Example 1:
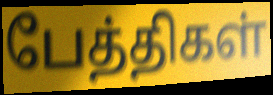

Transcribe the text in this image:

பேத்திகள்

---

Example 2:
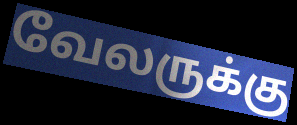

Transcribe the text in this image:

வேலருக்கு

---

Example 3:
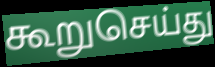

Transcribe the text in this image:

கூறுசெய்து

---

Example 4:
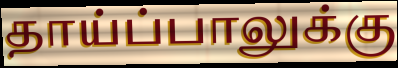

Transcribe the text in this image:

தாய்ப்பாலுக்கு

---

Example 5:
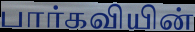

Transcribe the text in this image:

பார்கவியின்